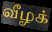
வீழக்